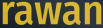
rawan